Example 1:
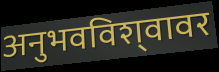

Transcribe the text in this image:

अनुभवविश्वावर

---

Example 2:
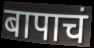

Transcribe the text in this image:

बापाचं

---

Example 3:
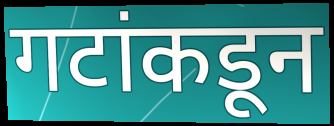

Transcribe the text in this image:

गटांकडून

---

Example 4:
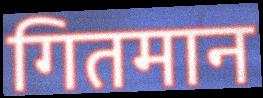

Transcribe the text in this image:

गितमान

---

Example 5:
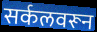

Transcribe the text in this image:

सर्कलवरून